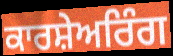
ਕਾਰਸ਼ੇਅਰਿੰਗ